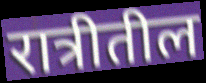
रात्रीतील